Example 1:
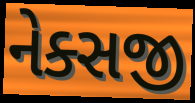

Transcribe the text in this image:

નેક્સજી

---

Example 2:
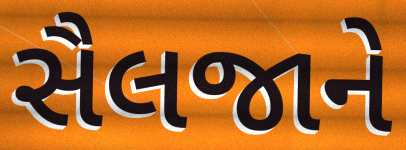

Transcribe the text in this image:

સૈલજાને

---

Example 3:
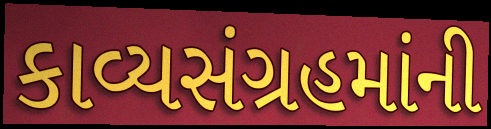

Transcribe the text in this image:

કાવ્યસંગ્રહમાંની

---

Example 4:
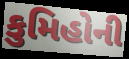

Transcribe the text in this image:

કુમિહોની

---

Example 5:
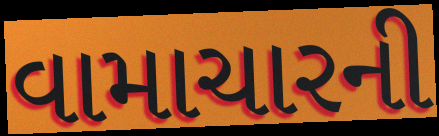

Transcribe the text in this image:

વામાચારની